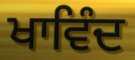
ਖਾਵਿੰਦ